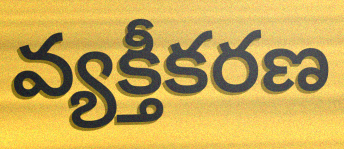
వ్యక్తీకరణ